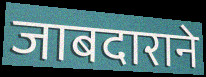
जाबदाराने